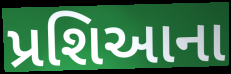
પ્રશિઆના